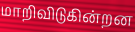
மாறிவிடுகின்றன